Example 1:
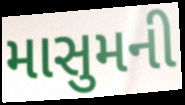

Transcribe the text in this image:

માસુમની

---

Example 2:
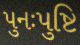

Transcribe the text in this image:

પુનઃપુષ્ટિ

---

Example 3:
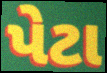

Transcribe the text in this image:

પેટા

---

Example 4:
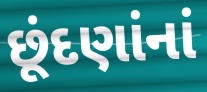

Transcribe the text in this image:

છૂંદણાંનાં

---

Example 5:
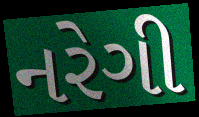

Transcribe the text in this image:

નરેગી